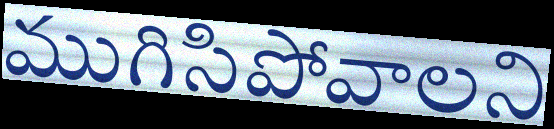
ముగిసిపోవాలని